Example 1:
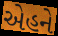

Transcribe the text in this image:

એહને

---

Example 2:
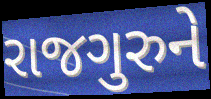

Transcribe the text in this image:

રાજગુરુને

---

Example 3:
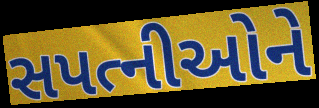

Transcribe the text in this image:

સપત્નીઓને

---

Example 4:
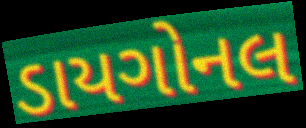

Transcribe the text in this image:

ડાયગોનલ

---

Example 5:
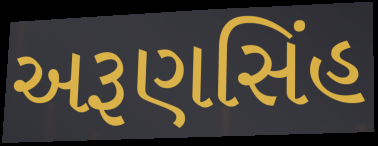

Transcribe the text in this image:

અરૂણસિંહ